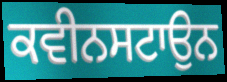
ਕਵੀਨਸਟਾਉਨ